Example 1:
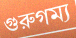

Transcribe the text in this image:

গুরুগম্য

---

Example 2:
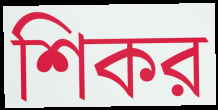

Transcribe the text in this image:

শিকর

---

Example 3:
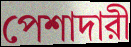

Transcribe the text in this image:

পেশাদারী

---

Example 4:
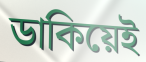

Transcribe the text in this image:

ডাকিয়েই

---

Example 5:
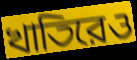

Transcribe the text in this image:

খাতিরেও